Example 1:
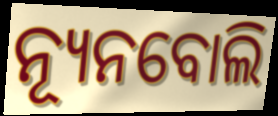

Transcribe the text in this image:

ନ୍ୟୂନବୋଲି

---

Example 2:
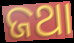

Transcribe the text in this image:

ଜଥା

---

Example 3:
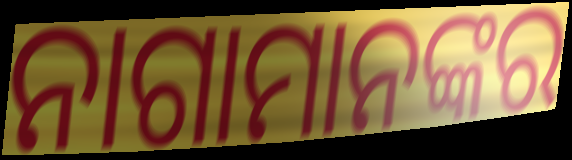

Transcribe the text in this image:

ନାଗାମାନଙ୍କର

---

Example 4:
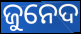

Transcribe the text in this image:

ଜୁନେଦ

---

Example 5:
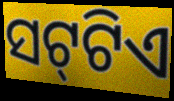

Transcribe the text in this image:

ସଟ୍‍ଟିଏ